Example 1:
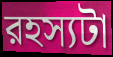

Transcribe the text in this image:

রহস্যটা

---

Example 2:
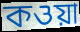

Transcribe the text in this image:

কওয়া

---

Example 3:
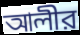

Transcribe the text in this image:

আলীর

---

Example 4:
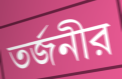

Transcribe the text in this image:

তর্জনীর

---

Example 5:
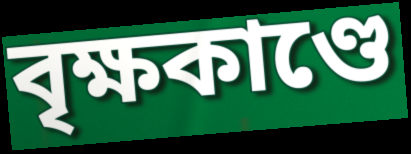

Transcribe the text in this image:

বৃক্ষকাণ্ডে